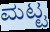
ಮಟ್ಟ